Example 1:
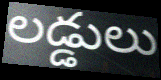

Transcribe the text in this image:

లడ్డులు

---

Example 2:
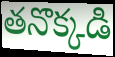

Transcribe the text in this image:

తనొక్కడి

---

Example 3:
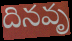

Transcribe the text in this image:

దినవృ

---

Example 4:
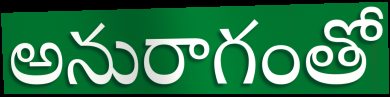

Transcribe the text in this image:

అనురాగంతో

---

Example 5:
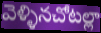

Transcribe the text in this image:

వెళ్ళినచోటల్లా